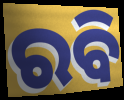
ରବି